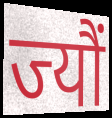
ज्यौं